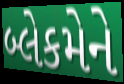
બ્લેકમેને